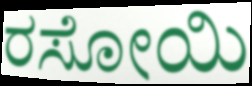
ರಸೋಯಿ